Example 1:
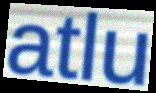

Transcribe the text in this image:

atlu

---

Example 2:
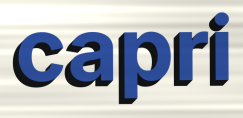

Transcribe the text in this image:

capri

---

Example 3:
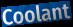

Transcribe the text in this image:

Coolant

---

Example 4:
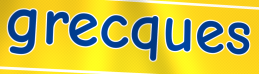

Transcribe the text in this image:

grecques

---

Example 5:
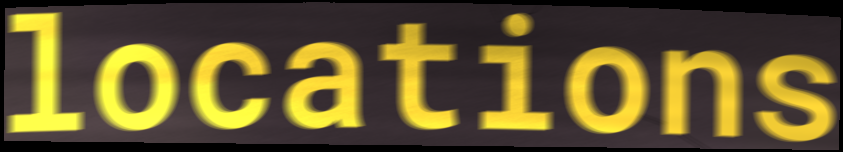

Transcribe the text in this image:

locations